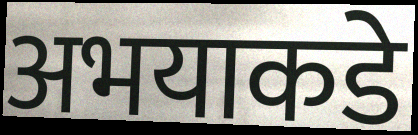
अभयाकडे